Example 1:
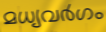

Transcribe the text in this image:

മധ്യവർഗം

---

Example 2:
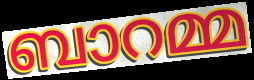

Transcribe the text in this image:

ബാറമ്മ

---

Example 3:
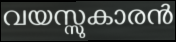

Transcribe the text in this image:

വയസ്സുകാരൻ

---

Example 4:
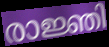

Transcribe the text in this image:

രാജ്ഞി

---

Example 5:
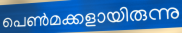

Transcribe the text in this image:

പെൺമക്കളായിരുന്നു